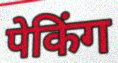
पेकिंग